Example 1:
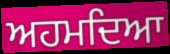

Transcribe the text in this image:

ਅਹਮਦਿਆ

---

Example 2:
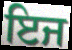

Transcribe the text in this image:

ਇਜ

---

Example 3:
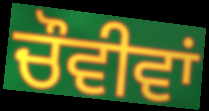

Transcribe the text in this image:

ਚੌਵੀਵਾਂ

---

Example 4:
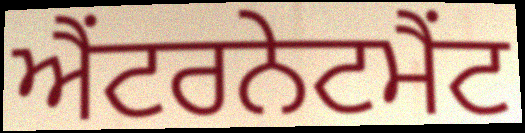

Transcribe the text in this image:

ਐਂਟਰਨੇਟਮੈਂਟ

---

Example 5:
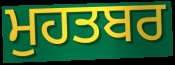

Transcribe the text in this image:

ਮੁਹਤਬਰ